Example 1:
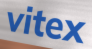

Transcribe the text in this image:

vitex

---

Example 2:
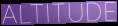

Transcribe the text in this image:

ALTITUDE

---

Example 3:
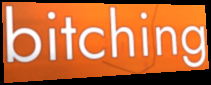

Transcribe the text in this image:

bitching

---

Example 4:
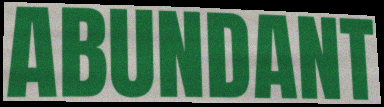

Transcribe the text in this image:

ABUNDANT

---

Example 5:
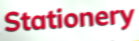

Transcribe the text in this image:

Stationery